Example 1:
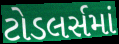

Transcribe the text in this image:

ટોડલર્સમાં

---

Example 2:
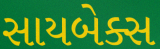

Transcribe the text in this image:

સાયબેક્સ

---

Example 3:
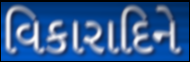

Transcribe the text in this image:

વિકારાદિને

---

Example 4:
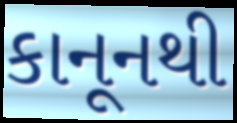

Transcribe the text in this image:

કાનૂનથી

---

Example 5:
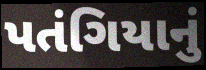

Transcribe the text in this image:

પતંગિયાનું